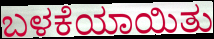
ಬಳಕೆಯಾಯಿತು